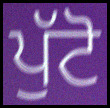
ਪੁੱਟੋ